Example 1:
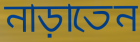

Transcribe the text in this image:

নাড়াতেন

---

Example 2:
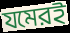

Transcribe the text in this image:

যমেরই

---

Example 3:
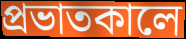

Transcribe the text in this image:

প্রভাতকালে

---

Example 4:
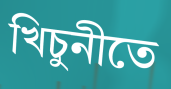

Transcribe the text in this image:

খিচুনীতে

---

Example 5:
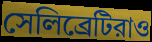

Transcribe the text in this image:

সেলিব্রেটিরাও